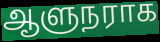
ஆளுநராக